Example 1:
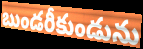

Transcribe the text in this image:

బుండరీకుండును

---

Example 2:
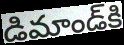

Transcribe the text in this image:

డిమాండ్‌కి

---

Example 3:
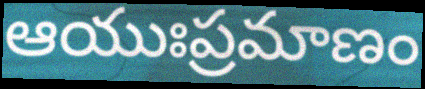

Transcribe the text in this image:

ఆయుఃప్రమాణం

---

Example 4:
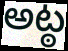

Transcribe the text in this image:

అట్ఠ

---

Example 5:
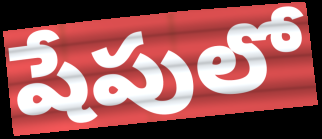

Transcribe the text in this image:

షేపులో